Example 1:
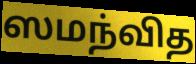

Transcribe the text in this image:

ஸமந்வித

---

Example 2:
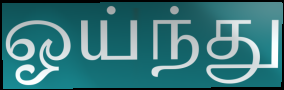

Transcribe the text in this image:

ஓய்ந்து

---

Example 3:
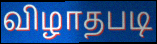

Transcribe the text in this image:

விழாதபடி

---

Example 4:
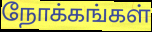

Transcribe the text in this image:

நோக்கங்கள்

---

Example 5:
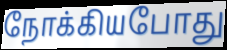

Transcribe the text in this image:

நோக்கியபோது